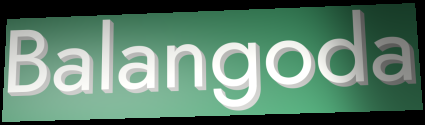
Balangoda